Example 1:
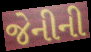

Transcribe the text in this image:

જેનીની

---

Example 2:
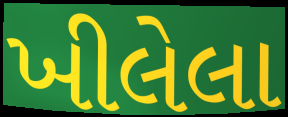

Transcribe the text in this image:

ખીલેલા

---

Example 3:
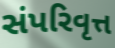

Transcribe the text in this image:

સંપરિવૃત્ત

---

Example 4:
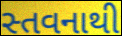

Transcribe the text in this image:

સ્તવનાથી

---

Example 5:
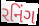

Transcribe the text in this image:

રનિંગ